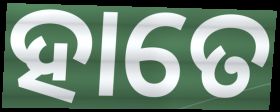
ହାତେ